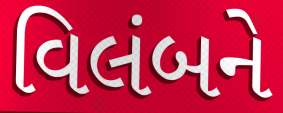
વિલંબને